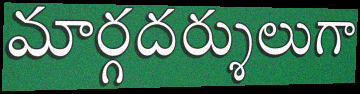
మార్గదర్శులుగా